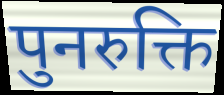
पुनरुक्ति